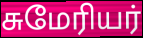
சுமேரியர்